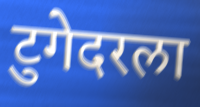
टुगेदरला